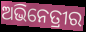
ଅଭିନେତ୍ରୀର